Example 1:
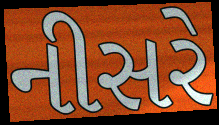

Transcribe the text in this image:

નીસરે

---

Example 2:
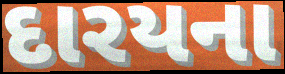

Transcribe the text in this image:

દારયના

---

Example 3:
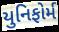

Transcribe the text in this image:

યુનિફોર્મ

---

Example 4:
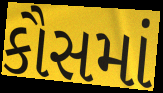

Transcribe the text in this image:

કૌસમાં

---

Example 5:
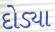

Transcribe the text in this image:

દોડ્યા